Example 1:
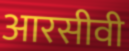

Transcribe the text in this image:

आरसीवी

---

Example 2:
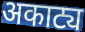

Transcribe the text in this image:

अकाट्य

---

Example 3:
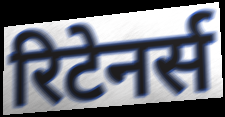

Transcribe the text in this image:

रिटेनर्स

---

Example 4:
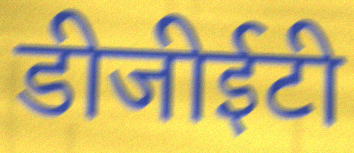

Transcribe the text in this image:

डीजीईटी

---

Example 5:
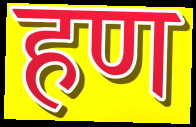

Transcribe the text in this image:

हण